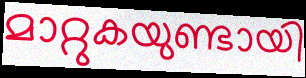
മാറ്റുകയുണ്ടായി